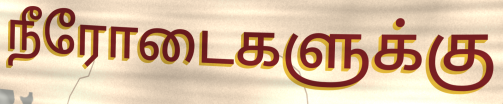
நீரோடைகளுக்கு